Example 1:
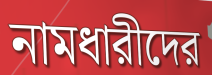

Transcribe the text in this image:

নামধারীদের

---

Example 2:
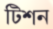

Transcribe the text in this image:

টিশন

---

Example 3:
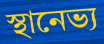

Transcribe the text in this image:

স্থানেভ্য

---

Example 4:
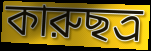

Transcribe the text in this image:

কারুছত্র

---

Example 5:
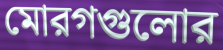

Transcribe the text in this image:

মোরগগুলোর